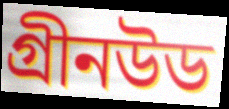
গ্রীনউড